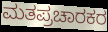
ಮತಪ್ರಚಾರಕರ